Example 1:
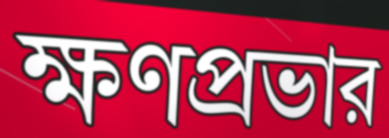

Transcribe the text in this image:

ক্ষণপ্রভার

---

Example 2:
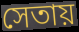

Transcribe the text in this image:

সেতায়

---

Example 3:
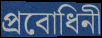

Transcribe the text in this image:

প্রবোধিনী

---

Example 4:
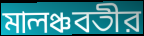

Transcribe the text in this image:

মালঞ্চবতীর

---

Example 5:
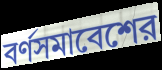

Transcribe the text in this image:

বর্ণসমাবেশের